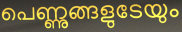
പെണ്ണുങ്ങളുടേയും